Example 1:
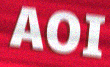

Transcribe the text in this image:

AOI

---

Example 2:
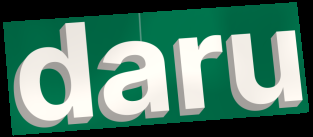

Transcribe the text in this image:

daru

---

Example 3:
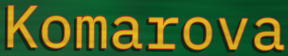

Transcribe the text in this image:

Komarova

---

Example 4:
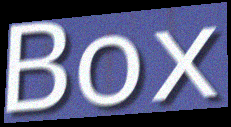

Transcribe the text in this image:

Box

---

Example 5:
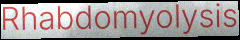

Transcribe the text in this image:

Rhabdomyolysis